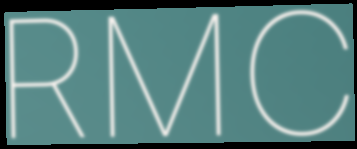
RMC